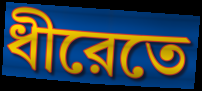
ধীরেতে